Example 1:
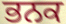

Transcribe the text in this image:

ਭਨਕ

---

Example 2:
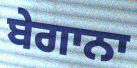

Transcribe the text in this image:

ਬੇਗਾਨਾ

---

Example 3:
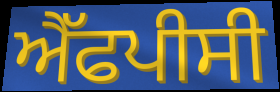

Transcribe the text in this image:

ਐੱਫਪੀਸੀ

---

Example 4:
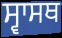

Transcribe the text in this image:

ਸ੍ਵਾਸਥ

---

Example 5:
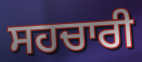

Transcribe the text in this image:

ਸਹਚਾਰੀ